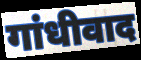
गांधीवाद